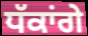
ਧੱਕਾਂਗੇ